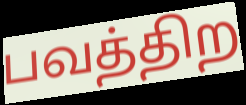
பவத்திற